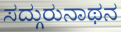
ಸದ್ಗುರುನಾಥನ